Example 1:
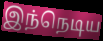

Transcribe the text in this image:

இந்நெடிய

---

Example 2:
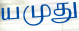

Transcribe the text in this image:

யமுது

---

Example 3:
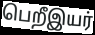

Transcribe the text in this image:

பெறீஇயர்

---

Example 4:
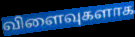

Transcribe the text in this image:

விளைவுகளாக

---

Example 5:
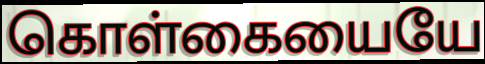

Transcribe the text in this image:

கொள்கையையே